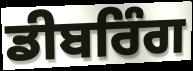
ਡੀਬਰਿੰਗ